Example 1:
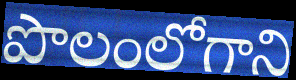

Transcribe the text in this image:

పొలంలోగాని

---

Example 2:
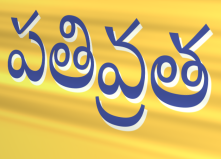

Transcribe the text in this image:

పతివ్రత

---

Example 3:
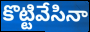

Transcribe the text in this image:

కొట్టివేసినా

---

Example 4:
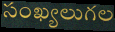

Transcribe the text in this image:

సంఖ్యలుగల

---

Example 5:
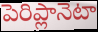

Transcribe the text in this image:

పెరిప్లానెటా